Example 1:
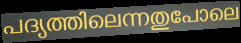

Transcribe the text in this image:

പദ്യത്തിലെന്നതുപോലെ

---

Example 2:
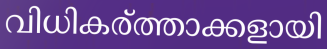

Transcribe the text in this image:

വിധികര്ത്താക്കളായി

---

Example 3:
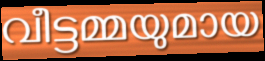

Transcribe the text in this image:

വീട്ടമ്മയുമായ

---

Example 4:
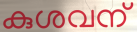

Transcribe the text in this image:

കുശവന്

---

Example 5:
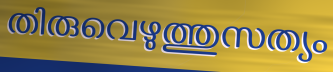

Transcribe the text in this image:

തിരുവെഴുത്തുസത്യം